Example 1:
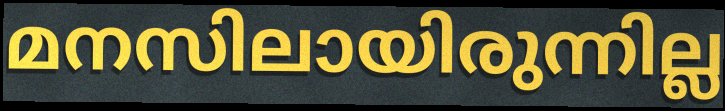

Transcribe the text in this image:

മനസിലായിരുന്നില്ല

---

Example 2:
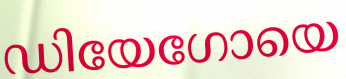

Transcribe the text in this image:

ഡിയേഗോയെ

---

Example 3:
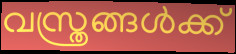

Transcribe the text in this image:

വസ്ത്രങ്ങൾക്ക്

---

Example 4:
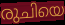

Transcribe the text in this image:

രുചിയെ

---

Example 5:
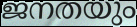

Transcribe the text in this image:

ജനതയും